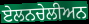
ਏਲਨਚੇਲੀਅਨ